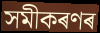
সমীকৰণৰ